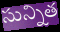
సున్నిత